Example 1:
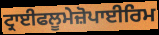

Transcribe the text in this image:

ਟ੍ਰਾਈਫਲੂਮੇਜ਼ੋਪਾਈਰਿਮ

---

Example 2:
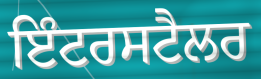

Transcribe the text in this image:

ਇੰਟਰਸਟੈਲਰ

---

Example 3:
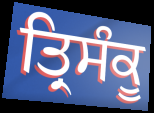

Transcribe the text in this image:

ਤ੍ਰਿਸੰਕੂ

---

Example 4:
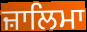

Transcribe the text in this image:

ਜ਼ਾਲਿਮਾ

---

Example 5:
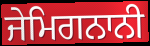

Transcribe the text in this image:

ਜੇਮਿਗਨਾਨੀ